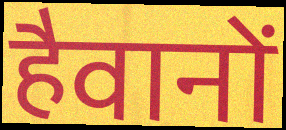
हैवानों